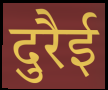
दुरैई